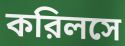
করিলসে